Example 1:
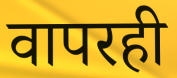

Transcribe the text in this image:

वापरही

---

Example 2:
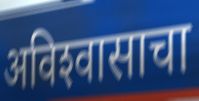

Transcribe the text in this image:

अविश्‍वासाचा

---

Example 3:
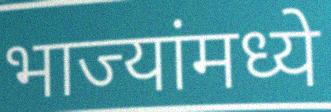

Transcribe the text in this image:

भाज्यांमध्ये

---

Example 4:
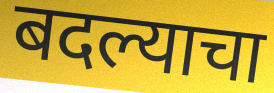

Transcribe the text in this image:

बदल्याचा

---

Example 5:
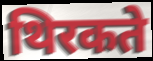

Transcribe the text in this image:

थिरकते